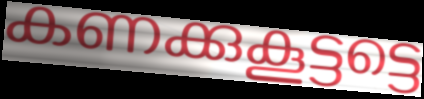
കണക്കുകൂട്ടട്ടെ